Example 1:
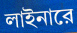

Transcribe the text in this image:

লাইনারে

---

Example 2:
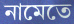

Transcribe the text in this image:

নামেতে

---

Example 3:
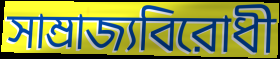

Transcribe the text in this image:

সাম্রাজ্যবিরোধী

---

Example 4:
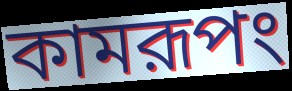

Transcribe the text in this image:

কামরূপং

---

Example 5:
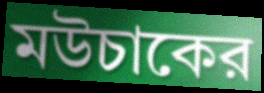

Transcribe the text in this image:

মউচাকের